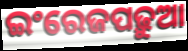
ଇଂରେଜପଢ଼ୁଆ